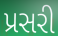
પ્રસરી